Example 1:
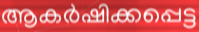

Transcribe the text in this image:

ആകർഷിക്കപ്പെട്ട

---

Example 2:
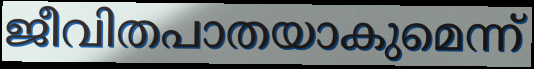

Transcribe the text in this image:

ജീവിതപാതയാകുമെന്ന്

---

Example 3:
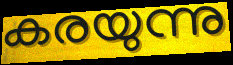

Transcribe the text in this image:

കരയുന്നു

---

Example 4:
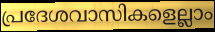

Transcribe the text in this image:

പ്രദേശവാസികളെല്ലാം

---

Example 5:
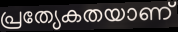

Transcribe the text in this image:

പ്രത്യേകതയാണ്